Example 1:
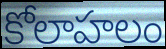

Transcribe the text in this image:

కోలాహలం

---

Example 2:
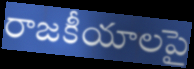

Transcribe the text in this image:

రాజకీయాలపై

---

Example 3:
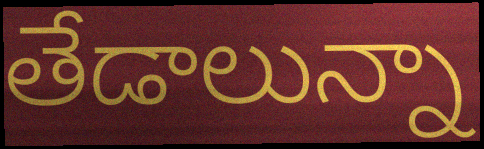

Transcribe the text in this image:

తేడాలున్నా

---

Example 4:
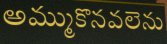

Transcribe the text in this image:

అమ్ముకొనవలెను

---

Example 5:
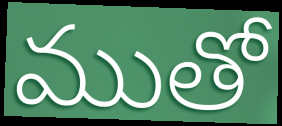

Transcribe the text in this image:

ముతో